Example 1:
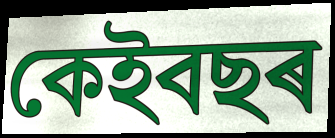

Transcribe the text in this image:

কেইবছৰ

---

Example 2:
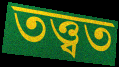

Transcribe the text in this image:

তত্ত্বত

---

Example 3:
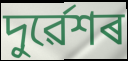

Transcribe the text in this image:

দুৰ্ৱেশৰ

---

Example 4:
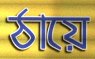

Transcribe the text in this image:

ঠায়ে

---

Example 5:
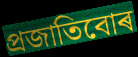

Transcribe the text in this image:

প্ৰজাতিবোৰ